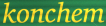
konchem